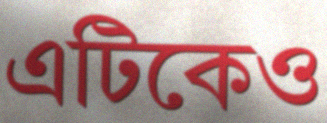
এটিকেও